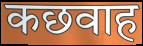
कछवाह